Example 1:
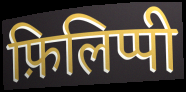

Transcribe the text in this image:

फ़िलिप्पी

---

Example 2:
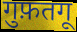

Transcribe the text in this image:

गुफ़तगू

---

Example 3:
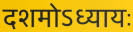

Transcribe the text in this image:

दशमोऽध्यायः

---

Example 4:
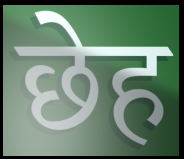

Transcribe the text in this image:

छेह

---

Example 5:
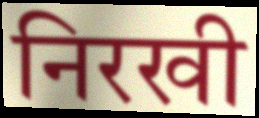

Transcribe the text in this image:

निरखी